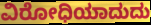
ವಿರೋಧಿಯಾದುದು